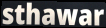
sthawar